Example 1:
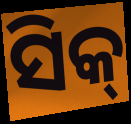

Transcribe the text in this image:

ସିକ୍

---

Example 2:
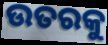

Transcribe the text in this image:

ଉତରକୁ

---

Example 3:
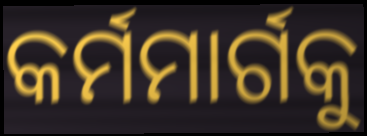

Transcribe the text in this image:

କର୍ମମାର୍ଗକୁ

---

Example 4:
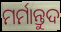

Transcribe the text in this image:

ମର୍ମାନ୍ତୁଦ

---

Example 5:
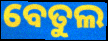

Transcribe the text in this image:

ବେତୁଲ